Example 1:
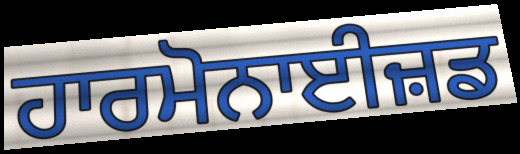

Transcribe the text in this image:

ਹਾਰਮੋਨਾਈਜ਼ਡ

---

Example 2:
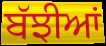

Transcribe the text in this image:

ਬੱਝੀਆਂ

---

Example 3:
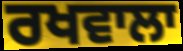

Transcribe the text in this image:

ਰਖਵਾਲਾ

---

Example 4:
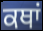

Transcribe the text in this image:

ਕਥਾਂ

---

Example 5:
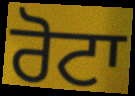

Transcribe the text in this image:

ਰੋਟਾ